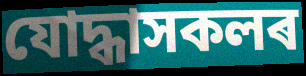
যোদ্ধাসকলৰ